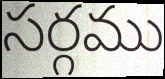
సర్గము